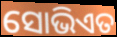
ସୋଭିଏତ